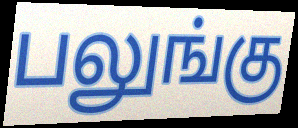
பலுங்கு